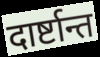
दार्ष्टान्त